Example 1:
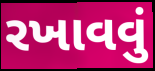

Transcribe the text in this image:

રખાવવું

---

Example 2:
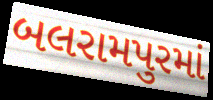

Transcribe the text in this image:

બલરામપુરમાં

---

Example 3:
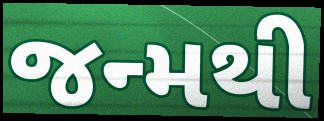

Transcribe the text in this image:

જન્મથી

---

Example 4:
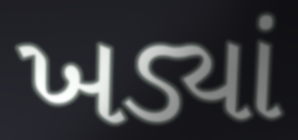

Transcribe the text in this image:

ખડ્યાં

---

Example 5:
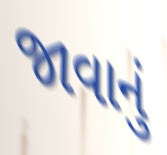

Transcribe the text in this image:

જાવાનું